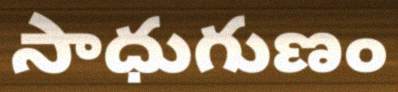
సాధుగుణం